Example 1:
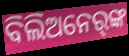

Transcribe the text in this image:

ବିଲିଅନେର୍‌ଙ୍କ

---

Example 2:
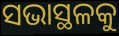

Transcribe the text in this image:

ସଭାସ୍ଥଳକୁ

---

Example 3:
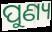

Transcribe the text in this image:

ପୁଣ୍ୟ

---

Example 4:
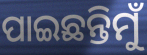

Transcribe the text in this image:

ପାଇଛନ୍ତିମୁଁ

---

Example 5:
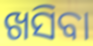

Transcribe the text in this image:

ଖସିବା